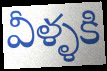
వీళ్ళకి